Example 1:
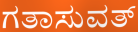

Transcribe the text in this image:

ಗತಾಸುವತ್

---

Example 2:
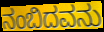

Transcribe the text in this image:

ನಂಬಿದವನು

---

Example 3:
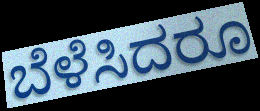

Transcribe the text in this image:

ಬೆಳೆಸಿದರೂ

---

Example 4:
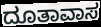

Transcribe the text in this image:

ದೂತಾವಾಸ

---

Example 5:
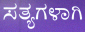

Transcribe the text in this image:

ಸತ್ಯಗಳಾಗಿ